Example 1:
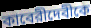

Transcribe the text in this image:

কাবেরীদেবীকে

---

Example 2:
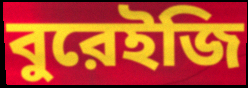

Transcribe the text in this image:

বুরেইজি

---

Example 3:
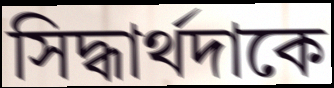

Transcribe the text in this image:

সিদ্ধার্থদাকে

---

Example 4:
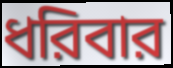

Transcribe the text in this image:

ধরিবার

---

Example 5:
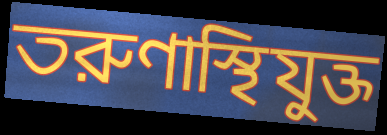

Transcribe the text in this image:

তরুণাস্থিযুক্ত